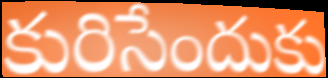
కురిసేందుకు